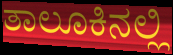
ತಾಲೂಕಿನಲ್ಲಿ